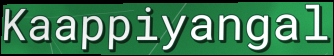
Kaappiyangal